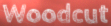
Woodcut